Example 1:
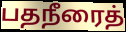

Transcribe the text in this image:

பதநீரைத்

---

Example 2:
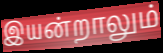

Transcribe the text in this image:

இயன்றாலும்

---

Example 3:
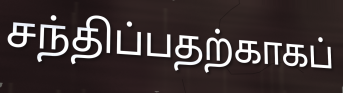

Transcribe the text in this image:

சந்திப்பதற்காகப்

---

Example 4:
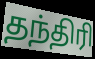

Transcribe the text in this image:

தந்திரி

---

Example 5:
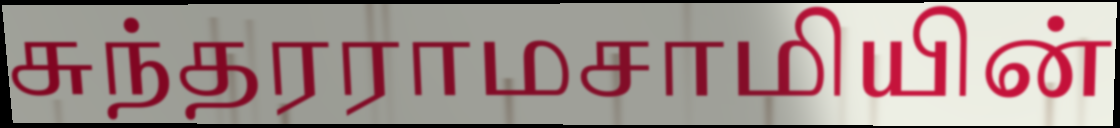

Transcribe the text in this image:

சுந்தரராமசாமியின்